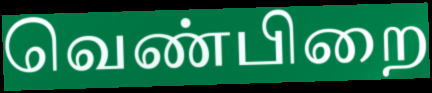
வெண்பிறை